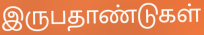
இருபதாண்டுகள்